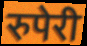
रुपेरी